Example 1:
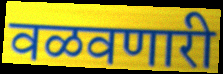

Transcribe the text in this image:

वळवणारी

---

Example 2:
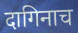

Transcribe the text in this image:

दागिनाच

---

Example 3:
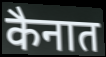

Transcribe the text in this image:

कैनात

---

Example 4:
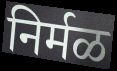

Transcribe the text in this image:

निर्मळ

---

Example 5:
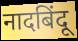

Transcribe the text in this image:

नादबिंदू